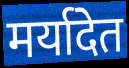
मर्यादेत